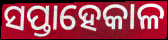
ସପ୍ତାହେକାଳ